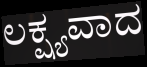
ಲಕ್ಷ್ಯವಾದ